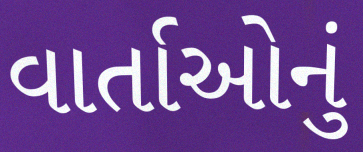
વાર્તાઓનું